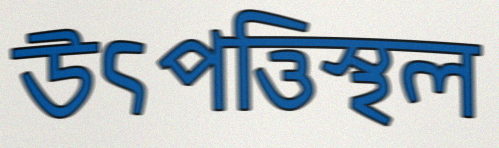
উৎপত্তিস্থল